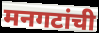
मनगटांची